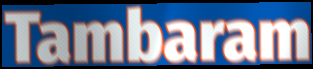
Tambaram